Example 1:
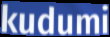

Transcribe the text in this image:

kudumi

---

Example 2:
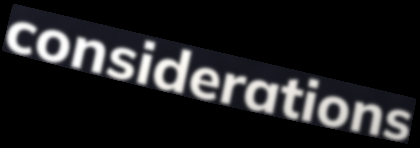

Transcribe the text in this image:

considerations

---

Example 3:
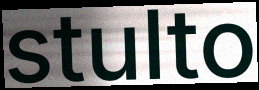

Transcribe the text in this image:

stulto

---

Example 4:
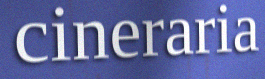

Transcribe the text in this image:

cineraria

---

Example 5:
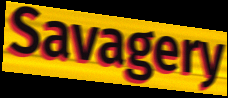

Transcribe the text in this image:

Savagery